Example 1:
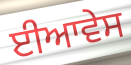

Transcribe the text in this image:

ਈਆਵੇਸ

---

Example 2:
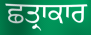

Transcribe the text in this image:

ਛਤ੍ਰਾਕਾਰ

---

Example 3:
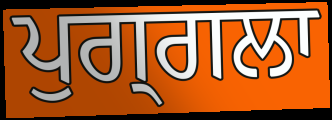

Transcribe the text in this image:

ਪੁਗ੍ਗਲਾ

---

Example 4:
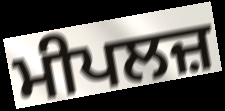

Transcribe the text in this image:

ਮੀਪਲਜ਼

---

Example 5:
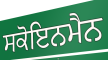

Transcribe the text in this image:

ਸਕੋਇਨਮੈਨ